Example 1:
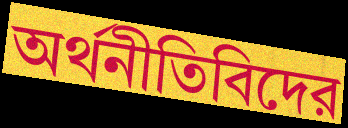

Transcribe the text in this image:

অর্থনীতিবিদের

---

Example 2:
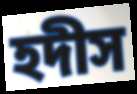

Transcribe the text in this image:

হদীস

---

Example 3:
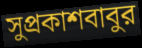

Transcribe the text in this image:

সুপ্রকাশবাবুর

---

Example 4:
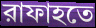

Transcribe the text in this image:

রাফাহতে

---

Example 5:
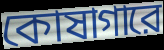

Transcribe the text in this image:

কোষাগারে